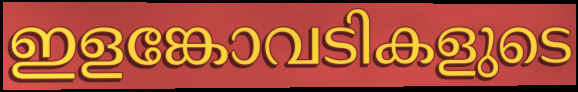
ഇളങ്കോവടികളുടെ